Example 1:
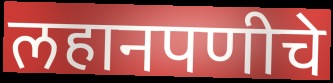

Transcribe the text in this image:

लहानपणीचे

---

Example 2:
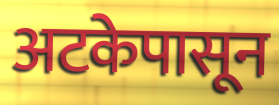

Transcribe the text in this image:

अटकेपासून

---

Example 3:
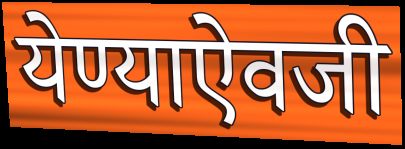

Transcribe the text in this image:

येण्याऐवजी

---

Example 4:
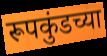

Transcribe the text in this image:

रूपकुंडच्या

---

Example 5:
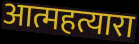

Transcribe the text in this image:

आत्महत्यारा